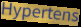
Hypertens